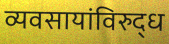
व्यवसायांविरुद्ध